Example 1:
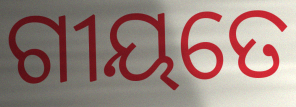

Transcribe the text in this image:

ଗୀୟତେ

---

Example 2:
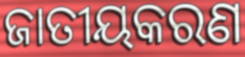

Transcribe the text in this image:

ଜାତୀୟକରଣ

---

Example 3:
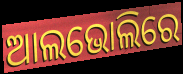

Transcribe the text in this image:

ଆଲଭୋଲିରେ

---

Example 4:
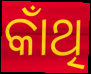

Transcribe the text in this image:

କାଁଥି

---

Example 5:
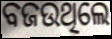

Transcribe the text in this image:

ବଜଉଥିଲେ